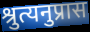
श्रुत्यनुप्रास